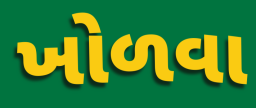
ખોળવા